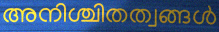
അനിശ്ചിതത്വങ്ങൾ